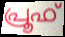
പ്രൂഫ്